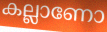
കല്ലാണോ